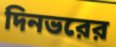
দিনভরের